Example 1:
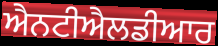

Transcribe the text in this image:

ਐਨਟੀਐਲਡੀਆਰ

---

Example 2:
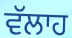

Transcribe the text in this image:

ਵੱਲਾਹ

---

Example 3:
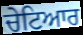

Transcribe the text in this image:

ਚੇਟਿਆਰ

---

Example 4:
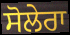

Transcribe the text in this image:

ਸੋਲੇਰਾ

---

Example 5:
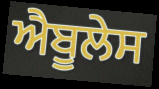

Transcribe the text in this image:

ਐਬੂਲੇਸ